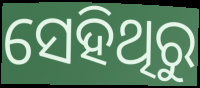
ସେହିଥିରୁ